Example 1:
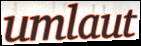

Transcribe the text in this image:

umlaut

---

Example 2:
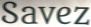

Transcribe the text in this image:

Savez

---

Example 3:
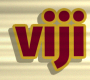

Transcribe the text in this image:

viji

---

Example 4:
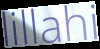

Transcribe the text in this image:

lillahi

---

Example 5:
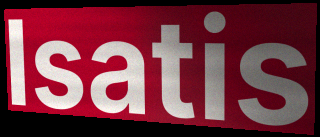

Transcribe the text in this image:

Isatis